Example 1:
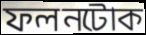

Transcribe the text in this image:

ফলনটোক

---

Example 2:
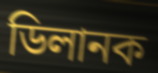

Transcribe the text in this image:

ডিলানক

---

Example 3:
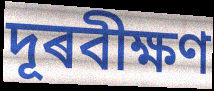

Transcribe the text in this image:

দূৰবীক্ষণ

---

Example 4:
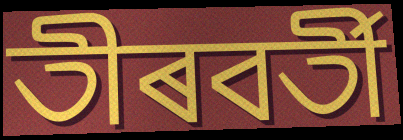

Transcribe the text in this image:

তীৰবৰ্তী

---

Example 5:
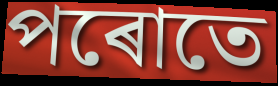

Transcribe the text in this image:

পৰোতে